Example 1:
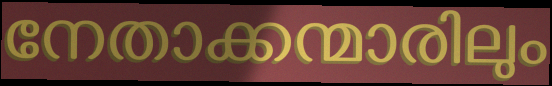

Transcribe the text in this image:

നേതാക്കന്മാരിലും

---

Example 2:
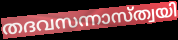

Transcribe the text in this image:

തദവസന്നാസ്ത്വയി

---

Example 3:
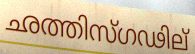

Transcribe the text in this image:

ഛത്തിസ്ഗഢില്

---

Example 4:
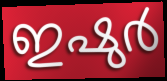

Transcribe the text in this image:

ഇഷുർ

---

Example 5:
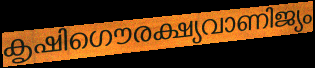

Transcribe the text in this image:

കൃഷിഗൌരക്ഷ്യവാണിജ്യം